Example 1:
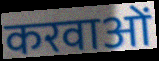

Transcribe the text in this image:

करवाओं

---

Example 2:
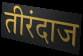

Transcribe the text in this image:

तीरंदाज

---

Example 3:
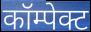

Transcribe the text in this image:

कॉम्पेक्ट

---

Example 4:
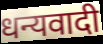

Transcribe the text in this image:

धन्यवादी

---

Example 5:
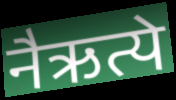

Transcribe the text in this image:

नैऋत्ये